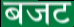
बजट